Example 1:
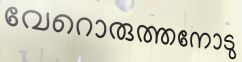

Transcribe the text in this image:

വേറൊരുത്തനോടു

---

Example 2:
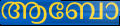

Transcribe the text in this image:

ആബോ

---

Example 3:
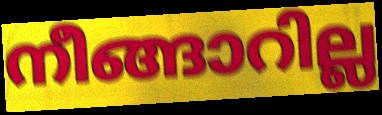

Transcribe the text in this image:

നീങ്ങാറില്ല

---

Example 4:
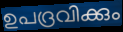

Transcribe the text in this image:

ഉപദ്രവിക്കും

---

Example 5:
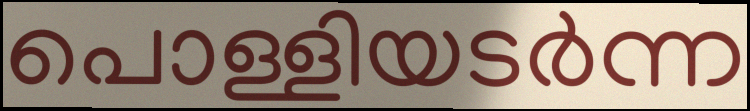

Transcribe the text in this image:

പൊള്ളിയടർന്ന